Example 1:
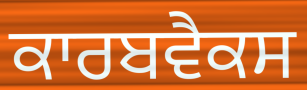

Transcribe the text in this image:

ਕਾਰਬਵੈਕਸ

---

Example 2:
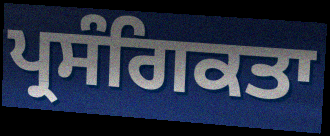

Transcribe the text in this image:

ਪ੍ਰਸੰਗਿਕਤਾ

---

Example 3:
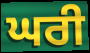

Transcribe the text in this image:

ਘਰੀ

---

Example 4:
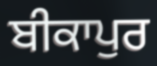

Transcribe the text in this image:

ਬੀਕਾਪੁਰ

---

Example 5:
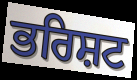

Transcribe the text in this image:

ਭਰਿਸ਼ਟ